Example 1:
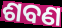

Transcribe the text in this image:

ଶବଣ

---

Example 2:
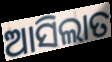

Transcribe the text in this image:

ଆସିଲାତ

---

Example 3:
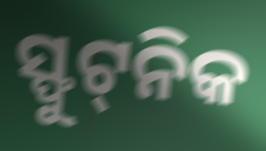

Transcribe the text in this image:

ସ୍ଫୁଟ୍‌ନିକ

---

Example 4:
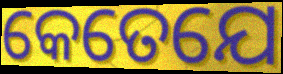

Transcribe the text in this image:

କେତେଯେ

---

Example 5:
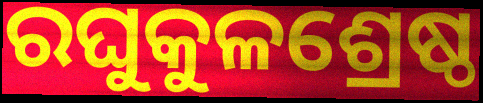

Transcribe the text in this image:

ରଘୁକୁଳଶ୍ରେଷ୍ଠ